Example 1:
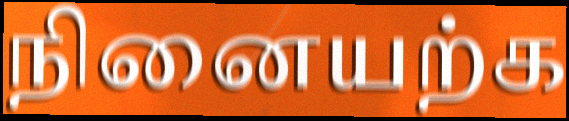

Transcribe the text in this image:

நினையற்க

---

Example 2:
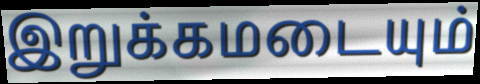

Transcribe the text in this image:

இறுக்கமடையும்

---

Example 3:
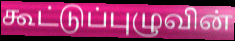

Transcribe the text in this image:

கூட்டுப்புழுவின்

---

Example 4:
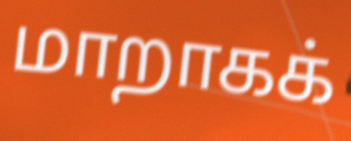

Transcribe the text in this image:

மாறாகக்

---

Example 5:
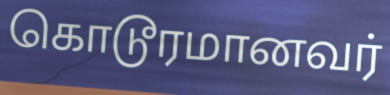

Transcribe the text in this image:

கொடூரமானவர்